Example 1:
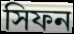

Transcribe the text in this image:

সিফন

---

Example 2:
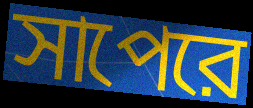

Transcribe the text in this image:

সাপেরে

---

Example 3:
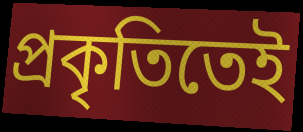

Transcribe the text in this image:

প্রকৃতিতেই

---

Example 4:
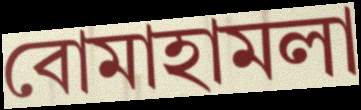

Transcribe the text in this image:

বোমাহামলা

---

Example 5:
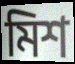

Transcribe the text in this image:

মিশ